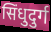
सिंधुदुर्ग